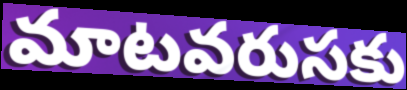
మాటవరుసకు